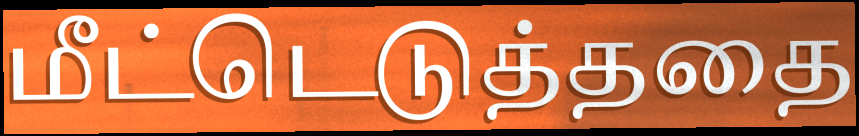
மீட்டெடுத்ததை